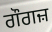
ਗੌਗਜ਼